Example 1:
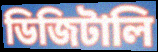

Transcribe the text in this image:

ডিজিটালি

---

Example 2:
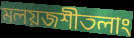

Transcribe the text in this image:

মলয়জশীতলাং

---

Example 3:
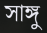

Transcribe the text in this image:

সাঙ্গু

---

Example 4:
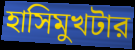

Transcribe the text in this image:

হাসিমুখটার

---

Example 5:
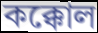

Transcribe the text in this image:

কক্কোল